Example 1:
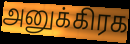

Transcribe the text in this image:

அனுக்கிரக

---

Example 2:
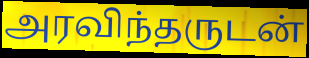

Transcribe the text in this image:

அரவிந்தருடன்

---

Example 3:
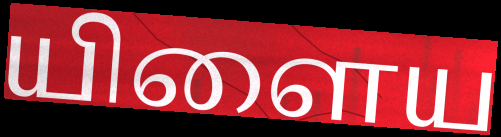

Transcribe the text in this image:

யிளைய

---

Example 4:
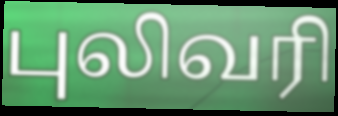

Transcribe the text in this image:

புலிவரி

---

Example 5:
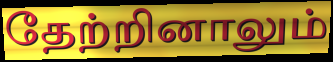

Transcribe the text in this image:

தேற்றினாலும்